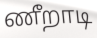
ணீறாடி